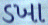
ડખા